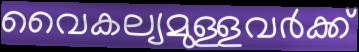
വൈകല്യമുള്ളവർക്ക്